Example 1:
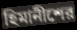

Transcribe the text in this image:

হিমানীশের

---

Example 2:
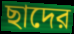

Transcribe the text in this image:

ছাদের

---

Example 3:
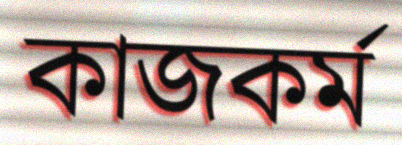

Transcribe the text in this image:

কাজকর্ম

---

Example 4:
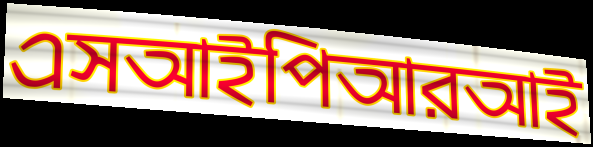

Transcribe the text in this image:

এসআইপিআরআই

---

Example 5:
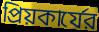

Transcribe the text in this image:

প্রিয়কার্যের